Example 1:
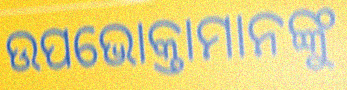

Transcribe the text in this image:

ଉପଭୋକ୍ତାମାନଙ୍କୁ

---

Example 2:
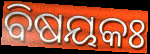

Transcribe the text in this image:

ବିଷୟକଃ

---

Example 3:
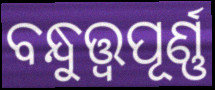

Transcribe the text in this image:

ବନ୍ଧୁତ୍ତ୍ୱପୂର୍ଣ୍ଣ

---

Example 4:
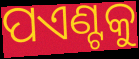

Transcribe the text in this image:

ପଏଣ୍ଟକୁ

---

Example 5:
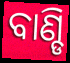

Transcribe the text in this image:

ବାଣ୍ଡି